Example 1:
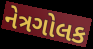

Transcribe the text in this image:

નેત્રગોલક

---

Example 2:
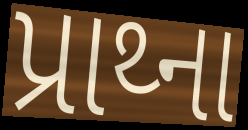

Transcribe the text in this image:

પ્રાથ્ના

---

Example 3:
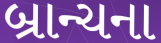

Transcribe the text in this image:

બ્રાન્ચના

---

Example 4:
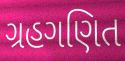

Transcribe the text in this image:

ગ્રહગણિત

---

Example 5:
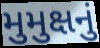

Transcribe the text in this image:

મુમુક્ષનું